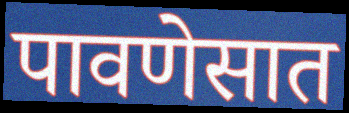
पावणेसात